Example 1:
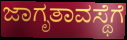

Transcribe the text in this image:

ಜಾಗೃತಾವಸ್ಥೆಗೆ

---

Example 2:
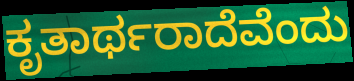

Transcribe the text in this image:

ಕೃತಾರ್ಥರಾದೆವೆಂದು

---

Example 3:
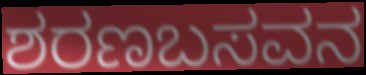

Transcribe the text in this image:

ಶರಣಬಸವನ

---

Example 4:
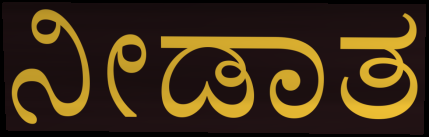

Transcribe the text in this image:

ನೀಡಾತ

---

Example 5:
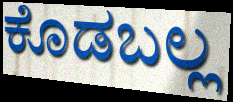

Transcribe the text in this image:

ಕೊಡಬಲ್ಲ